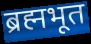
ब्रह्मभूत